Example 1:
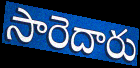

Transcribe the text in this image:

సారెదారు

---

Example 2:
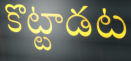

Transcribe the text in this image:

కొట్టాడట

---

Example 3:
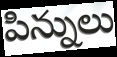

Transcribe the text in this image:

పిన్నులు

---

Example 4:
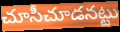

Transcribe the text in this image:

చూసీచూడనట్టు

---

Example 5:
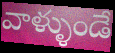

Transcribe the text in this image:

వాళ్ళుండే